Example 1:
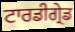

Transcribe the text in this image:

ਟਾਰਡੀਗ੍ਰੇਡ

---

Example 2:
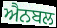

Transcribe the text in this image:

ਐਨਬਲ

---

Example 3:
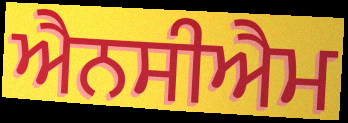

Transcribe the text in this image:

ਐਨਸੀਐਮ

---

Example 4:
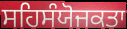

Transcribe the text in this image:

ਸਹਿਸੰਯੋਜਕਤਾ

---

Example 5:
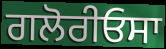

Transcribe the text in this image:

ਗਲੋਰੀਓਸਾ